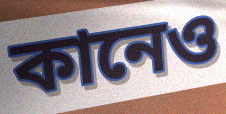
কানেও